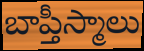
బాప్తీస్మాలు